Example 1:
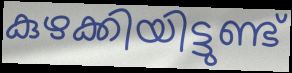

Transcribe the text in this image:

കുഴക്കിയിട്ടുണ്ട്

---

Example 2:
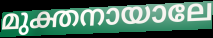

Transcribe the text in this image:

മുക്തനായാലേ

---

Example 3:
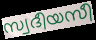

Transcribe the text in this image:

സ്വദീയസീ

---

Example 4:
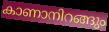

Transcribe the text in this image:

കാണാനിറങ്ങും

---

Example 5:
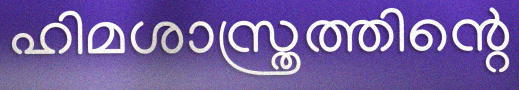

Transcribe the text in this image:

ഹിമശാസ്ത്രത്തിന്റെ